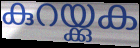
കുറയ്ക്കുക